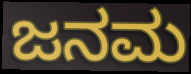
ಜನಮ